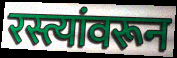
रस्त्यांवरून